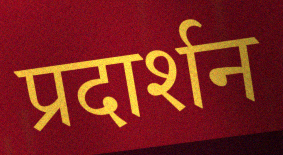
प्रदार्शन